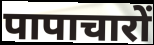
पापाचारों